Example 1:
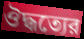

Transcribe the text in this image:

ঔদ্ধত্যের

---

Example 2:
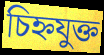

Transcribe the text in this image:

চিহ্নযুক্ত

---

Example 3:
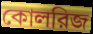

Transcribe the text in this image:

কোলরিজ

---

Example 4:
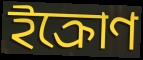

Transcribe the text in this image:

ইক্রোণ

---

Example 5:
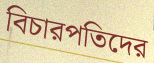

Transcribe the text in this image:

বিচারপতিদের